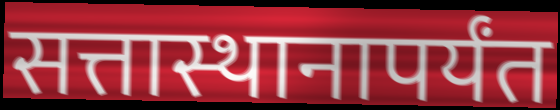
सत्तास्थानापर्यंत